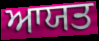
ਆਯਤ